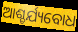
ଆଶ୍ଚର୍ଯ୍ୟବୋଧ